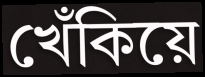
খেঁকিয়ে